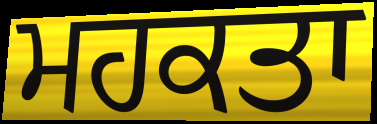
ਮਹਕਤਾ